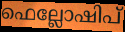
ഫെല്ലോഷിപ്